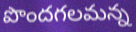
పొందగలమన్న